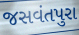
જસવંતપુરા